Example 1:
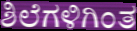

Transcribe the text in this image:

ಶಿಲೆಗಳಿಗಿಂತ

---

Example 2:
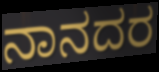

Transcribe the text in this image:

ನಾನದರ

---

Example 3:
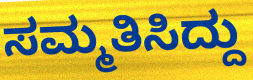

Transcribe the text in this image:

ಸಮ್ಮತಿಸಿದ್ದು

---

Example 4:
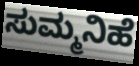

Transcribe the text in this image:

ಸುಮ್ಮನಿಹೆ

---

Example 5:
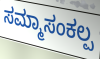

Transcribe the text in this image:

ಸಮ್ಮಾಸಂಕಲ್ಪ